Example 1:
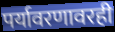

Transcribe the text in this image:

पर्यावरणावरही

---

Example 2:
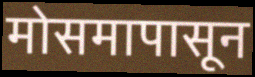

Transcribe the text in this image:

मोसमापासून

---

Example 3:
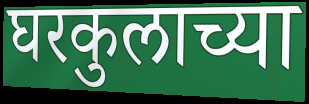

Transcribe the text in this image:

घरकुलाच्या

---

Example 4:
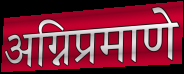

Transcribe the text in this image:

अग्निप्रमाणे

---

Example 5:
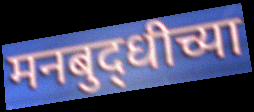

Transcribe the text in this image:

मनबुद्धीच्या